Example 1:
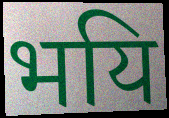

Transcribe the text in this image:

भयि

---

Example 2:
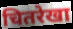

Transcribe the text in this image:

चितरेखा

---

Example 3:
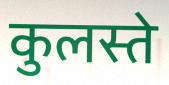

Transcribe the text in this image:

कुलस्ते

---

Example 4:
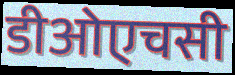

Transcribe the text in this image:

डीओएचसी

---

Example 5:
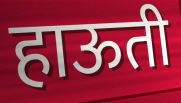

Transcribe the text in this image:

हाऊती